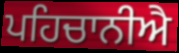
ਪਹਿਚਾਨੀਐ